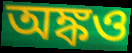
অঙ্কও